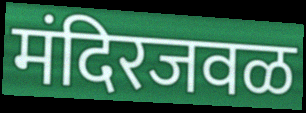
मंदिरजवळ